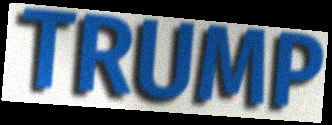
TRUMP